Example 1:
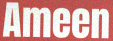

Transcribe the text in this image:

Ameen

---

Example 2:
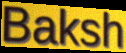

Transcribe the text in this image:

Baksh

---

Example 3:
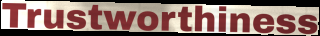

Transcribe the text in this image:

Trustworthiness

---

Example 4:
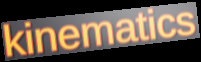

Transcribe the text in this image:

kinematics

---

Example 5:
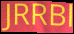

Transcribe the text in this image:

JRRBl